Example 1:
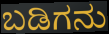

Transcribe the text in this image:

ಬಡಿಗನು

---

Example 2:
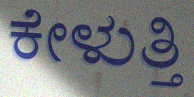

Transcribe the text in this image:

ಕೇಳುತ್ತಿ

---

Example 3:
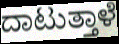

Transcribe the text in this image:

ದಾಟುತ್ತಾಳೆ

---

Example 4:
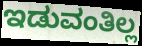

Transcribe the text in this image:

ಇಡುವಂತಿಲ್ಲ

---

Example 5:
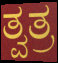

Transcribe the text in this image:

ತ್ವತ್ರ